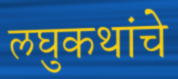
लघुकथांचे